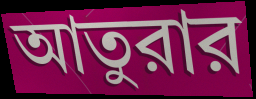
আতুরার